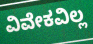
ವಿವೇಕವಿಲ್ಲ